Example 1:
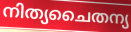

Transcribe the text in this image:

നിത്യചൈതന്യ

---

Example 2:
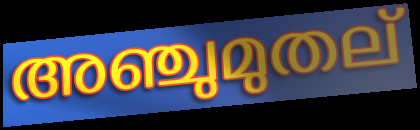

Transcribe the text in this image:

അഞ്ചുമുതല്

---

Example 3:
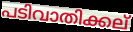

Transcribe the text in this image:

പടിവാതിക്കല്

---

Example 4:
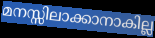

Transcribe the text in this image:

മനസ്സിലാക്കാനാകില്ല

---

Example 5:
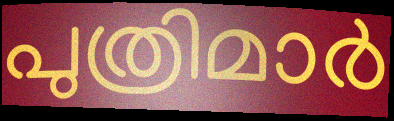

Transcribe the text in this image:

പുത്രിമാർ